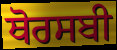
ਥੋਰਸਬੀ